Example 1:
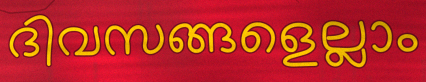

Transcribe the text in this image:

ദിവസങ്ങളെല്ലാം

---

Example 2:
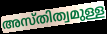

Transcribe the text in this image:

അസ്തിത്വമുള്ള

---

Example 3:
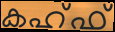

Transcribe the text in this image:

കഹ്ഫ്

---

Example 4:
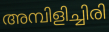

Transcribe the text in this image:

അമ്പിളിച്ചിരി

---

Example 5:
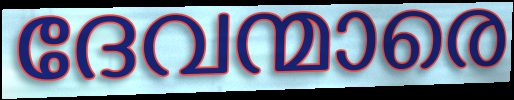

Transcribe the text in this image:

ദേവന്മാരെ